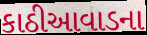
કાઠીઆવાડના